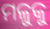
ମଳୁକୁ